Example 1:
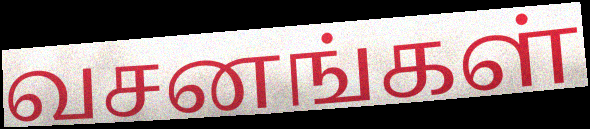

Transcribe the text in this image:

வசனங்கள்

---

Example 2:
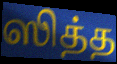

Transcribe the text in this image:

ஸித்த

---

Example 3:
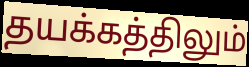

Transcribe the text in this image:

தயக்கத்திலும்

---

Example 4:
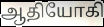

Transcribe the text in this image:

ஆதியோகி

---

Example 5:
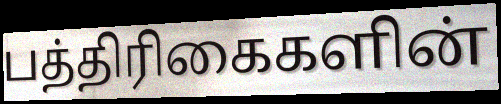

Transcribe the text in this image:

பத்திரிகைகளின்